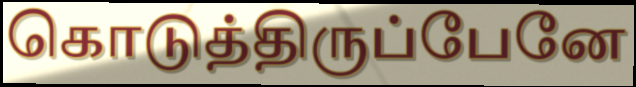
கொடுத்திருப்பேனே